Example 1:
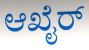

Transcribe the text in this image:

ಆಖೈರ್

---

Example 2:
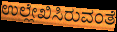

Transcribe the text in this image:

ಉಲ್ಲೇಖಿಸಿರುವಂತೆ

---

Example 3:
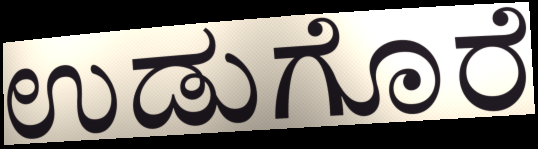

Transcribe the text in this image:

ಉಡುಗೊರೆ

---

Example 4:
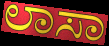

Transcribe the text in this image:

ಲಾಸಾ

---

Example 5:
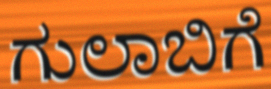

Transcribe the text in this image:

ಗುಲಾಬಿಗೆ